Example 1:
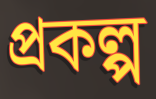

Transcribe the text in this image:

প্ৰকল্প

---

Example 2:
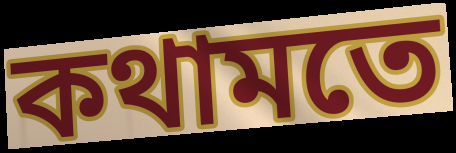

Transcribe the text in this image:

কথামতে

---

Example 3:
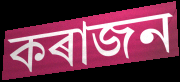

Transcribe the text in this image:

কৰাজন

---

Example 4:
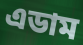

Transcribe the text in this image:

এডাম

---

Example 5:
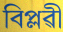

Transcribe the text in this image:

বিপ্লৱী